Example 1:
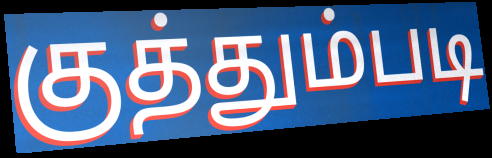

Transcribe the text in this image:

குத்தும்படி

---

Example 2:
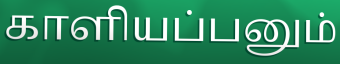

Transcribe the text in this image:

காளியப்பனும்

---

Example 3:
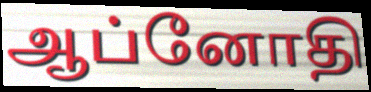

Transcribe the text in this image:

ஆப்னோதி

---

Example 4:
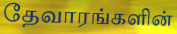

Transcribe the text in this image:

தேவாரங்களின்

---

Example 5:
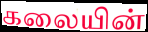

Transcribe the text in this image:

கலையின்